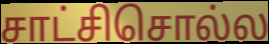
சாட்சிசொல்ல